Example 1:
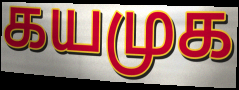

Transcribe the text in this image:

கயமுக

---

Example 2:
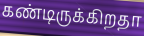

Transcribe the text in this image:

கண்டிருக்கிறதா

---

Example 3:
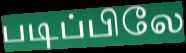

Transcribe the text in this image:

படிப்பிலே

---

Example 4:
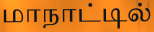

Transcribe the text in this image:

மாநாட்டில்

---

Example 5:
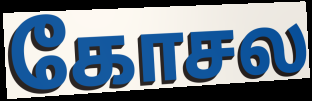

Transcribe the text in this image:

கோசல